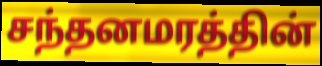
சந்தனமரத்தின்